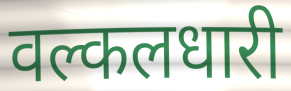
वल्कलधारी